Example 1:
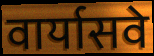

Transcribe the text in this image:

वार्यासवे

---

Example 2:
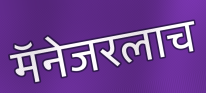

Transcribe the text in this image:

मॅनेजरलाच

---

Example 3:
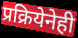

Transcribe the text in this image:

प्रक्रियेनेही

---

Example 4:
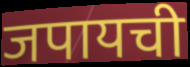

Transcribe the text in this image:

जपायची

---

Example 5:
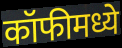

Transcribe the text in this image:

कॉफीमध्ये